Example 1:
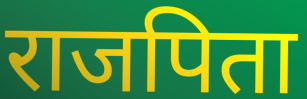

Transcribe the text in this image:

राजपिता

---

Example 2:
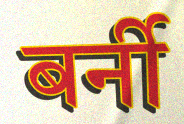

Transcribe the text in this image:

बर्नी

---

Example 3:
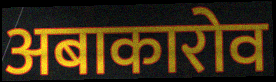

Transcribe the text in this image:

अबाकारोव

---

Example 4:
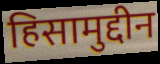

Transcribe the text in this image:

हिसामुद्दीन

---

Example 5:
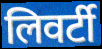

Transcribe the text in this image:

लिवर्टी